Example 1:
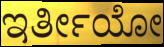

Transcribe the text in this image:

ಇರ್ತೀಯೋ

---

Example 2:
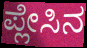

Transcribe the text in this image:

ಪ್ಲೇಸಿನ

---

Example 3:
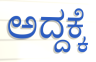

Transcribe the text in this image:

ಅದ್ದಕ್ಕೆ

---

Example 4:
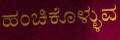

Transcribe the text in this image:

ಹಂಚಿಕೊಳ್ಳುವ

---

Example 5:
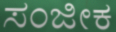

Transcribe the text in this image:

ಸಂಜೀಕ